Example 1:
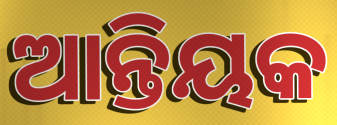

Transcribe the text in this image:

ଆନ୍ତିୟକ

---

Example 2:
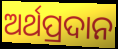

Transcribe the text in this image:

ଅର୍ଥପ୍ରଦାନ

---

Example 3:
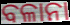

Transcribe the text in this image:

ବଳାନା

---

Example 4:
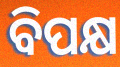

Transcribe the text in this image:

ବିପକ୍ଷ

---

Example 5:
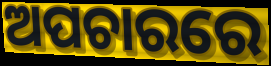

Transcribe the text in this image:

ଅପଚାରରେ